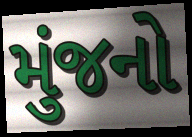
મુંજનો